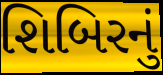
શિબિરનું